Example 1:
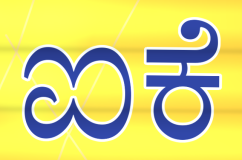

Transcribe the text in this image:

ಐಕೆ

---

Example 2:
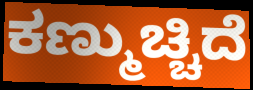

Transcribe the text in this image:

ಕಣ್ಮುಚ್ಚಿದೆ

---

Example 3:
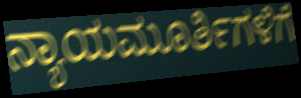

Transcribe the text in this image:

ನ್ಯಾಯಮೂರ್ತಿಗಳಿಗೆ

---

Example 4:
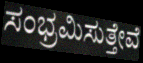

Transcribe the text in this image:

ಸಂಭ್ರಮಿಸುತ್ತೇವೆ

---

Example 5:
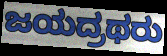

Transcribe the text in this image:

ಜಯದ್ರಥರು